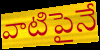
వాటిపైనే